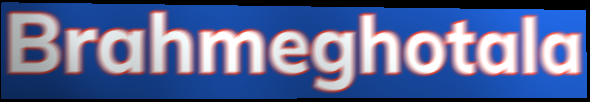
Brahmeghotala